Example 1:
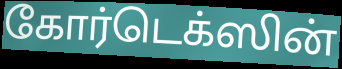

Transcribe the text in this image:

கோர்டெக்ஸின்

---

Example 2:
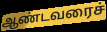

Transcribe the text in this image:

ஆண்டவரைச்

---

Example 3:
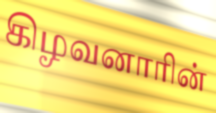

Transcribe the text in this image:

கிழவனாரின்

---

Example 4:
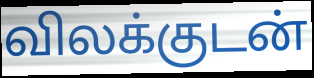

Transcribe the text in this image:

விலக்குடன்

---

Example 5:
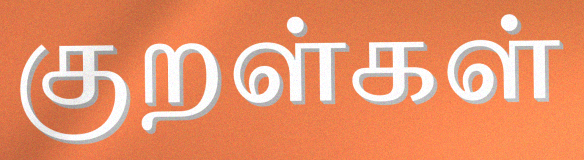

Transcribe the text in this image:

குறள்கள்